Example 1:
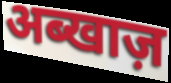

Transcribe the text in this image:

अब्खाज़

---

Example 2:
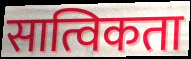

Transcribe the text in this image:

सात्विकता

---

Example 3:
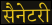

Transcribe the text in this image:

सैनेटरी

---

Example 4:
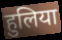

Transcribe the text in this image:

हुलिया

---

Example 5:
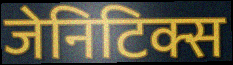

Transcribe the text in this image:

जेनिटिक्स